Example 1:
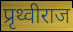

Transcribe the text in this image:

प्रृथ्वीराज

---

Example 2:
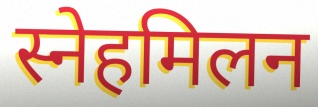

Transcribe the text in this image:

स्नेहमिलन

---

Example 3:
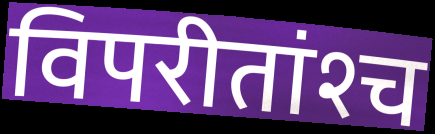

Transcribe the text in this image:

विपरीतांश्च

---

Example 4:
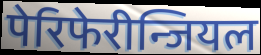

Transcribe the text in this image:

पेरिफेरीन्जियल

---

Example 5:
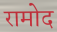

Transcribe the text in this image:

रामोद